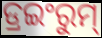
ଡ୍ରଇଂରୁମ୍